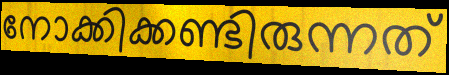
നോക്കിക്കണ്ടിരുന്നത്